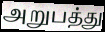
அறுபத்து